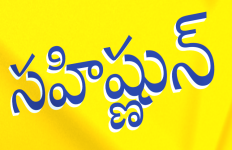
సహిష్ణున్